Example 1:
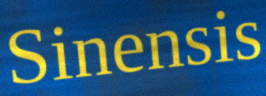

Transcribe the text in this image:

Sinensis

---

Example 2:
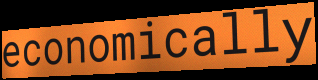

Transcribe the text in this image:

economically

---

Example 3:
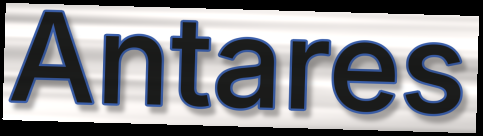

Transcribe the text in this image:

Antares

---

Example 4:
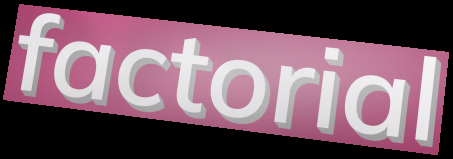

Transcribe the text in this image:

factorial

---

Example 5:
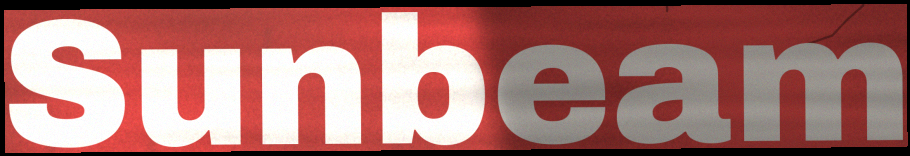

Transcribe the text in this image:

Sunbeam